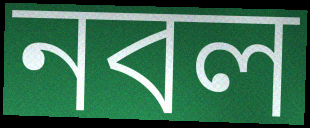
নবল